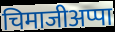
चिमाजीअप्पा